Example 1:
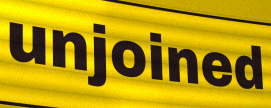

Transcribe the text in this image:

unjoined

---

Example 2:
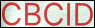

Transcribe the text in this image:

CBCID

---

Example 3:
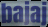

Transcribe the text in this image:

bajaj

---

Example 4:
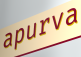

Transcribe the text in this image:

apurva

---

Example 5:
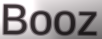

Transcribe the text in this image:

Booz